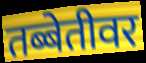
तब्बेतीवर